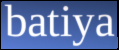
batiya